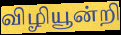
விழியூன்றி